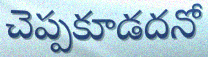
చెప్పకూడదనో